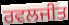
ਰਵਲਜੀਤ